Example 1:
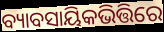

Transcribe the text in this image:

ବ୍ୟାବସାୟିକଭିତ୍ତିରେ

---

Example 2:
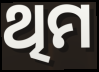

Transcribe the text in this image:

ଥିମ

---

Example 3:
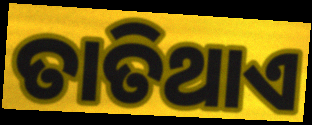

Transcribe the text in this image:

ତାତିଥାଏ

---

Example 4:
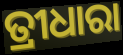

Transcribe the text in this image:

ତ୍ରୀଧାରା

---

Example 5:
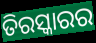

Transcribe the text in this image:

ତିରସ୍କାରର